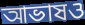
আভাষও